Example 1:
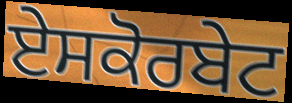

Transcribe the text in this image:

ਏਸਕੋਰਬੇਟ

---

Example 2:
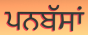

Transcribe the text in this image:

ਪਨਬੱਸਾਂ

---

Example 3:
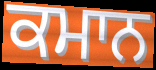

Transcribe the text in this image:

ਕਮਾਨ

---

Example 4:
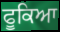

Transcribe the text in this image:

ਫੂਕਿਆ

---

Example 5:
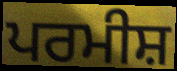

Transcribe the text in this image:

ਪਰਮੀਸ਼